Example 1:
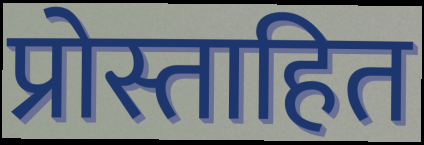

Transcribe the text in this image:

प्रोस्ताहित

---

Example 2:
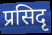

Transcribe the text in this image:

प्रसिदृ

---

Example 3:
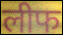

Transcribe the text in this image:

लीफ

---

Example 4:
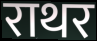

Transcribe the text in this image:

राथर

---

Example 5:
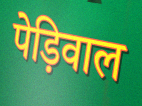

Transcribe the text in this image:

पेड़िवाल